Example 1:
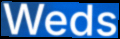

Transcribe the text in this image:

Weds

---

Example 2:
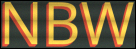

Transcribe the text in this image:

NBW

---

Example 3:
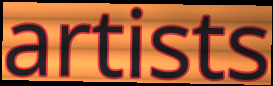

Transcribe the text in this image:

artists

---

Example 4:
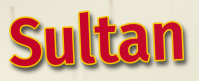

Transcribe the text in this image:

Sultan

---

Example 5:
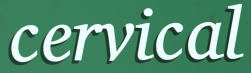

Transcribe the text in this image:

cervical